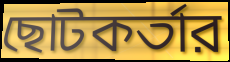
ছোটকর্তার